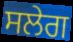
ਸਲੇਗ